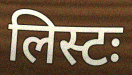
लिस्टः